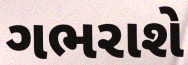
ગભરાશે